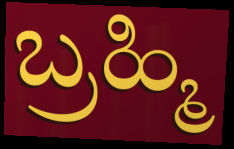
ಬ್ರಹ್ಮಿ